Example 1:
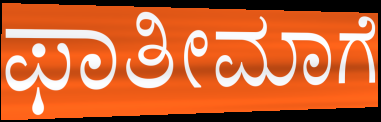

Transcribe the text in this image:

ಫಾತೀಮಾಗೆ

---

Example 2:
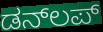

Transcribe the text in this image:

ಡನ್‌ಲಪ್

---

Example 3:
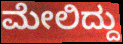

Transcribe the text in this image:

ಮೇಲಿದ್ದು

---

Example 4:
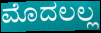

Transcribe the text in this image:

ಮೊದಲಲ್ಲ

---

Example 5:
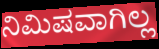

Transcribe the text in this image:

ನಿಮಿಷವಾಗಿಲ್ಲ